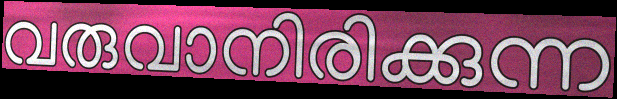
വരുവാനിരിക്കുന്ന